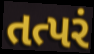
તત્પરં